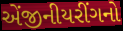
એંજીનીયરીંગનો